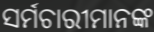
ସର୍ମଚାରୀମାନଙ୍କ